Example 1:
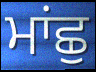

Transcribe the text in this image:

ਮਾਂਛੁ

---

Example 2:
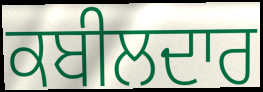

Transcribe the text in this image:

ਕਬੀਲਦਾਰ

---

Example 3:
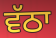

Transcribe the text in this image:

ਵੱਠਾ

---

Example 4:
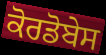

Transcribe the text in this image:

ਕੋਰਡੋਬੇਸ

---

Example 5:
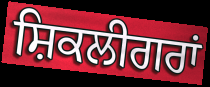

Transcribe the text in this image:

ਸ਼ਿਕਲੀਗਰਾਂ